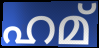
ഹമ്